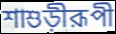
শাশুড়ীরূপী